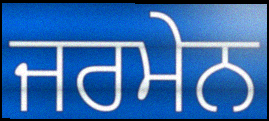
ਜਰਮੇਨ